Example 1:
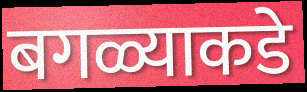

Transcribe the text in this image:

बगळ्याकडे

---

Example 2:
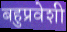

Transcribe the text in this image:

बहुप्रवेशी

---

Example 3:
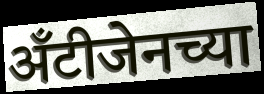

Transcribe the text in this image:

अँटीजेनच्या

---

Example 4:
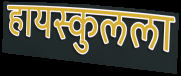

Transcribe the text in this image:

हायस्कुलला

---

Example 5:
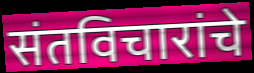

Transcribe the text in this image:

संतविचारांचे